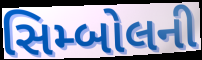
સિમ્બોલની